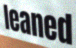
leaned